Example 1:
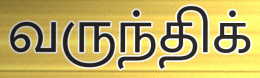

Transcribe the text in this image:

வருந்திக்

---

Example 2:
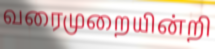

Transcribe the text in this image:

வரைமுறையின்றி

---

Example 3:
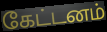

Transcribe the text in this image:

கேட்டனம்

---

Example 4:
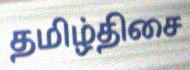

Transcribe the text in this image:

தமிழ்திசை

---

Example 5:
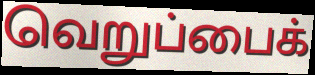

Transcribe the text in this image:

வெறுப்பைக்